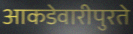
आकडेवारीपुरते